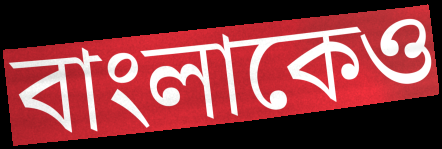
বাংলাকেও